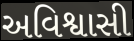
અવિશ્વાસી